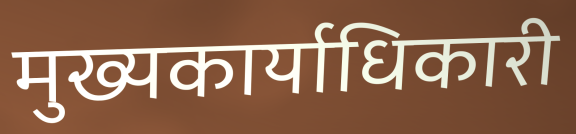
मुख्यकार्याधिकारी